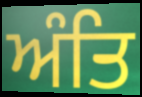
ਅੰਤਿ